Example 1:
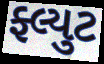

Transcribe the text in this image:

ફ્લ્યુટ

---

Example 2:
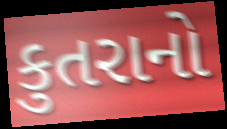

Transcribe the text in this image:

કુતરાનો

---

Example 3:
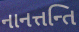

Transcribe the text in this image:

નાનત્તન્તિ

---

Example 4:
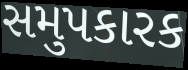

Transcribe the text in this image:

સમુપકારક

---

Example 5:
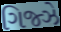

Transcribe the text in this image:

ગિજ્ઝે